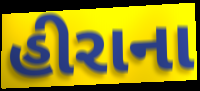
હીરાના